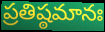
ప్రతిష్ఠమానః